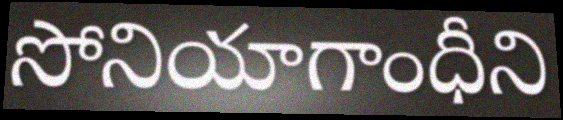
సోనియాగాంధీని